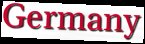
Germany